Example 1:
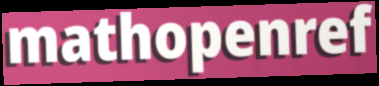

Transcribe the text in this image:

mathopenref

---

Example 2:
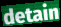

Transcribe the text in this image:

detain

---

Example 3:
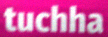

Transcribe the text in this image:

tuchha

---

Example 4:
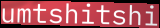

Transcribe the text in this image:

umtshitshi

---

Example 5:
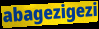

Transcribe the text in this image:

abagezigezi